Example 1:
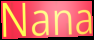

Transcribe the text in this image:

Nana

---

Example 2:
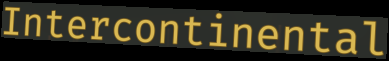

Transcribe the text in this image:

Intercontinental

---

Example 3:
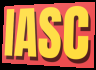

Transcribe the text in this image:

IASC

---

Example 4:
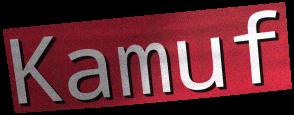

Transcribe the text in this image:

Kamuf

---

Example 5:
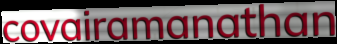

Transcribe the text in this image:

covairamanathan